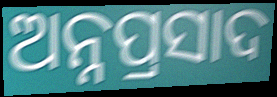
ଅନ୍ନପ୍ରସାଦ